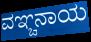
ವಞ್ಚನಾಯ